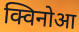
क्विनोआ